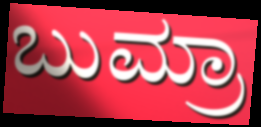
ಬುಮ್ರಾ